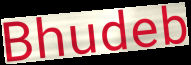
Bhudeb